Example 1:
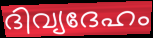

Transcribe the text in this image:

ദിവ്യദേഹം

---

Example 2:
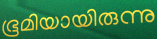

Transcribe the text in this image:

ഭൂമിയായിരുന്നു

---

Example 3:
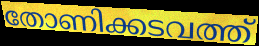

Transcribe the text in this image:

തോണിക്കടവത്ത്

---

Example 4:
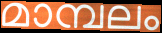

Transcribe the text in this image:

മാമ്പലം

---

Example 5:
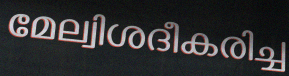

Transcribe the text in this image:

മേല്വിശദീകരിച്ച